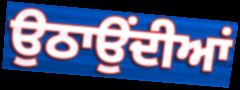
ਉਠਾਉਂਦੀਆਂ